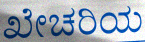
ಖೇಚರಿಯ